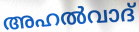
അഹൽവാദ്